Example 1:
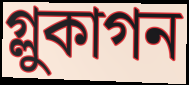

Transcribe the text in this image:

গ্লুকাগন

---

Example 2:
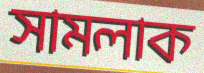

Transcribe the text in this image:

সামলাক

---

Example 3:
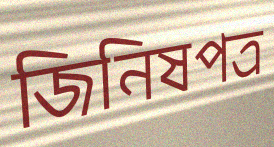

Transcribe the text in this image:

জিনিষপত্র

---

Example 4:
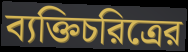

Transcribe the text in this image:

ব্যক্তিচরিত্রের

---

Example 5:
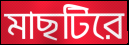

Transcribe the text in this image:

মাছটিরে